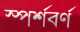
স্পৰ্শবৰ্ণ